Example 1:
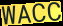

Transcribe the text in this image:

WACC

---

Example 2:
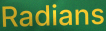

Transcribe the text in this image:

Radians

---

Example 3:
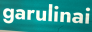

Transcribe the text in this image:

garulinai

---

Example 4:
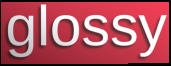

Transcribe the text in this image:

glossy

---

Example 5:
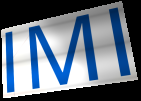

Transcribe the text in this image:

IMI